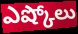
ఎష్కోలు